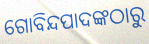
ଗୋବିନ୍ଦପାଦଙ୍କଠାରୁ